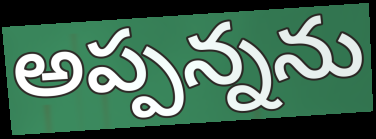
అప్పన్నను